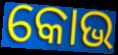
କୋଭ